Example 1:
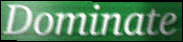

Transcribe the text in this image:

Dominate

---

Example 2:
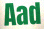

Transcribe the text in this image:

Aad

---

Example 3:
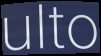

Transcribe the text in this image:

ulto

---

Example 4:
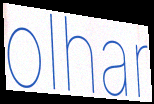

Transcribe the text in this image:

olhar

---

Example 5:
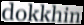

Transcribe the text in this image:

dokkhin